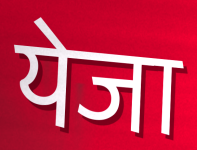
येजा